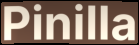
Pinilla